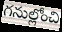
గనుల్లోంచి